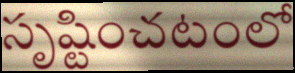
సృష్టించటంలో